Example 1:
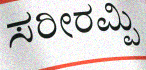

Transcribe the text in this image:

ಸರೀರಮ್ಪಿ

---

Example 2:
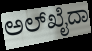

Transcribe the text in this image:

ಅಲ್‌ಖೈದಾ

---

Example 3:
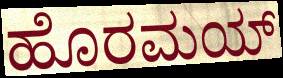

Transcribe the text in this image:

ಹೊರಮಯ್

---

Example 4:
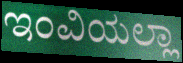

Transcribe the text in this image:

ಇಂವಿಯಲ್ಲಾ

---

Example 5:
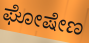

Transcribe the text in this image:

ಘೋಷೇಣ